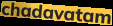
chadavatam